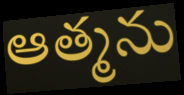
ఆత్మను